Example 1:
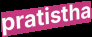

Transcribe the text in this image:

pratistha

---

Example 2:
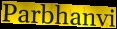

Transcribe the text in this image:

Parbhanvi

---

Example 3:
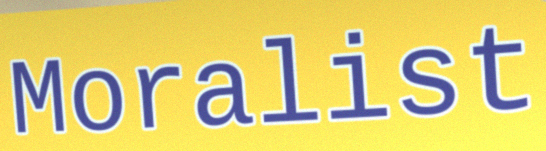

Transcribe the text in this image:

Moralist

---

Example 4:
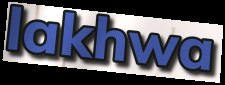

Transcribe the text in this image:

lakhwa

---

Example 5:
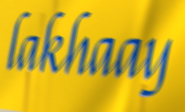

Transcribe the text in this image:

lakhaay